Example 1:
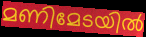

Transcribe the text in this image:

മണിമേടയിൽ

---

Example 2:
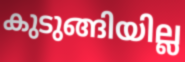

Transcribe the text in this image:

കുടുങ്ങിയില്ല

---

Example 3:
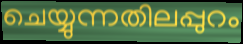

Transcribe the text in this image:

ചെയ്യുന്നതിലപ്പുറം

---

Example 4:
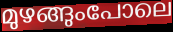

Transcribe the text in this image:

മുഴങ്ങുംപോലെ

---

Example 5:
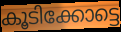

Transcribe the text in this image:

കൂടിക്കോട്ടെ